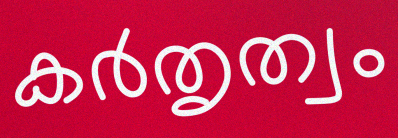
കർതൃത്വം